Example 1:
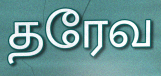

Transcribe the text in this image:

தரேவ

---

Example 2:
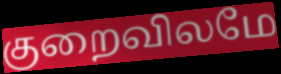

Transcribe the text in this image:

குறைவிலமே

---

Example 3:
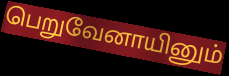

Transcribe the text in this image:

பெறுவேனாயினும்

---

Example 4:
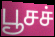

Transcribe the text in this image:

பூசச்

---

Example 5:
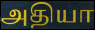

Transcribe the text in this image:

அதியா